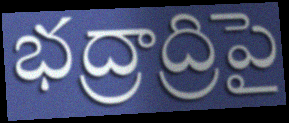
భద్రాద్రిపై